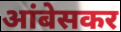
आंबेसकर